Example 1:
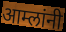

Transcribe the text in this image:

आम्लांनी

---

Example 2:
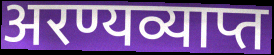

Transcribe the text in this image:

अरण्यव्याप्त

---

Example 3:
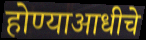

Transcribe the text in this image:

होण्याआधीचे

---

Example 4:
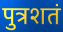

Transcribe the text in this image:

पुत्रशतं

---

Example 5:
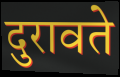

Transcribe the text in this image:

दुरावते